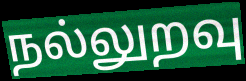
நல்லுறவு